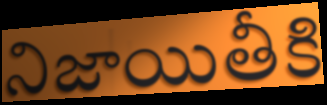
నిజాయితీకి